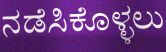
ನಡೆಸಿಕೊಳ್ಳಲು